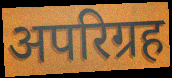
अपरिग्रह